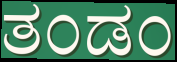
ತಂಡಂ